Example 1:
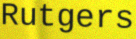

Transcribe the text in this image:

Rutgers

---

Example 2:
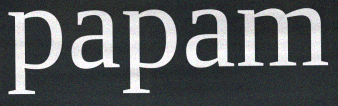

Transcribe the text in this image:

papam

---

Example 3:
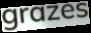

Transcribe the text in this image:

grazes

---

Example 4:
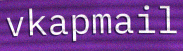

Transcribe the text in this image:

vkapmail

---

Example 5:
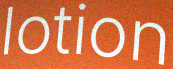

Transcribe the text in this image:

lotion